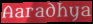
Aaradhya